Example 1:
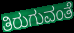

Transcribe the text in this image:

ತಿರುಗುವಂತೆ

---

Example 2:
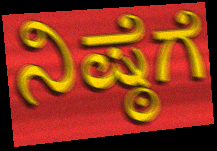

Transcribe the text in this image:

ನಿಷ್ಠೆಗೆ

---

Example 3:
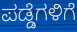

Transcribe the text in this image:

ಪಡ್ಡೆಗಳಿಗೆ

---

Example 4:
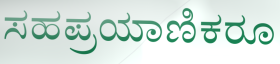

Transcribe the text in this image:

ಸಹಪ್ರಯಾಣಿಕರೂ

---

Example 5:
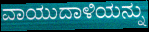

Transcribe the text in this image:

ವಾಯುದಾಳಿಯನ್ನು